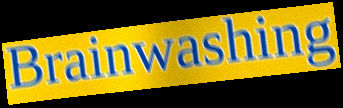
Brainwashing